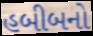
હબીબનો